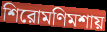
শিরোমণিমশায়